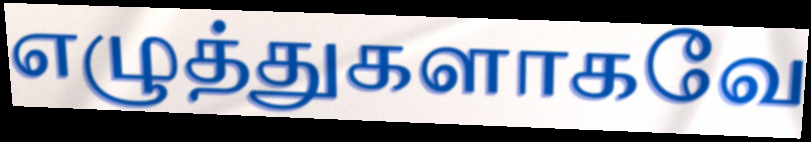
எழுத்துகளாகவே